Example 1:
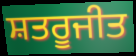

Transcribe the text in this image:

ਸ਼ਤਰੂਜੀਤ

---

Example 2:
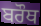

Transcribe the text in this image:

ਬਰੌਥ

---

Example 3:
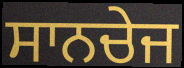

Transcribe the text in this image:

ਸਾਨਚੇਜ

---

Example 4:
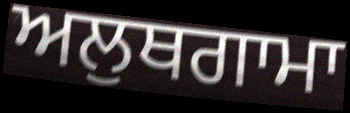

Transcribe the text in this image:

ਅਲੁਥਗਾਮਾ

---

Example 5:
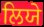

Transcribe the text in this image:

ਲਿਯੇ